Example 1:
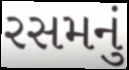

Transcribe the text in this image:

રસમનું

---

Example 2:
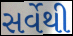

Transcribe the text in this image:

સર્વેથી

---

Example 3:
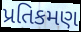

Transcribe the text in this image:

પ્રતિકમણ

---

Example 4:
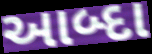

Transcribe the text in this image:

આબ્દા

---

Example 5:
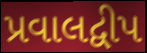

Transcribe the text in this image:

પ્રવાલદ્વીપ